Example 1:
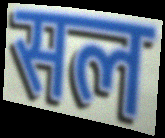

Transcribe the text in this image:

सल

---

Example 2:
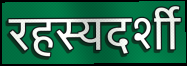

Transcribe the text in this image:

रहस्यदर्शी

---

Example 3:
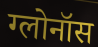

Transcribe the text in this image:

ग्लोनॉस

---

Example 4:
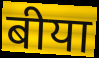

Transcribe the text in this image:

बीया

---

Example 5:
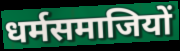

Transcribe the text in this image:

धर्मसमाजियों